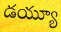
డయ్యూ